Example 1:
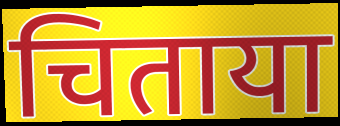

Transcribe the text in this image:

चिताया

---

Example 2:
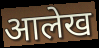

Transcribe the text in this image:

आलेख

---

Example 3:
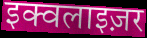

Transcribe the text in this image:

इक्वलाइज़र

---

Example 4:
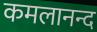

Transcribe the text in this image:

कमलानन्द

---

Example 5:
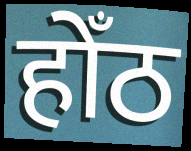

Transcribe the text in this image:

होँठ